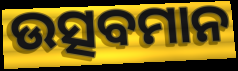
ଉତ୍ସବମାନ